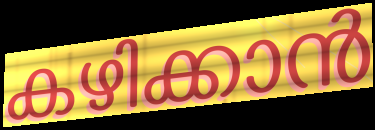
കഴിക്കാൻ